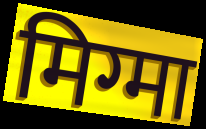
मिग्मा